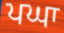
ਪਘਾ